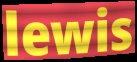
lewis